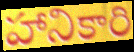
హానికారి